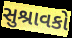
સુશ્રાવકો